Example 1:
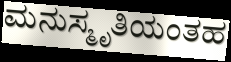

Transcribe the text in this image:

ಮನುಸ್ಮೃತಿಯಂತಹ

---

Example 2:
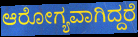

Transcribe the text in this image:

ಆರೋಗ್ಯವಾಗಿದ್ದರೆ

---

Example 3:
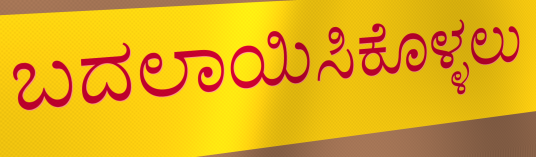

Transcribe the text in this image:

ಬದಲಾಯಿಸಿಕೊಳ್ಳಲು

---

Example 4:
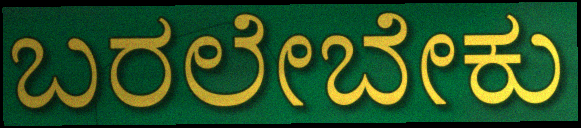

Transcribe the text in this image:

ಬರಲೇಬೇಕು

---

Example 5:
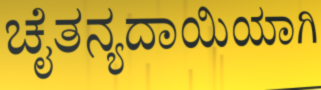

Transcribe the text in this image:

ಚೈತನ್ಯದಾಯಿಯಾಗಿ